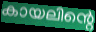
കായലിന്റെ